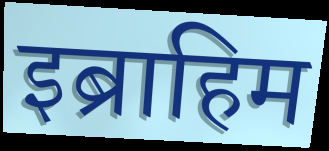
इब्राहिम